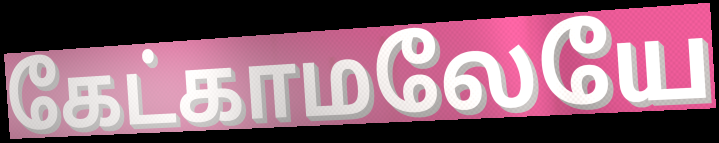
கேட்காமலேயே